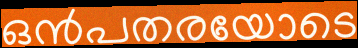
ഒൻപതരയോടെ